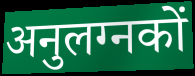
अनुलग्नकों